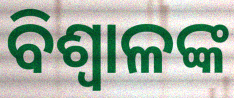
ବିଶ୍ୱାଳଙ୍କ